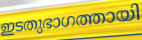
ഇടതുഭാഗത്തായി